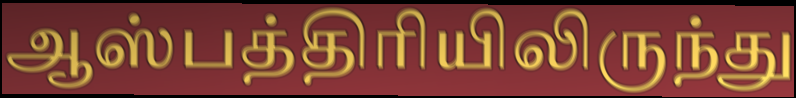
ஆஸ்பத்திரியிலிருந்து